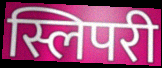
स्लिपरी